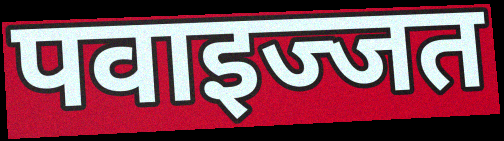
पवाइज्जत